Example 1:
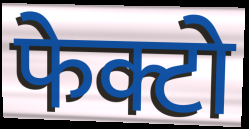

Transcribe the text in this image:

फेक्टो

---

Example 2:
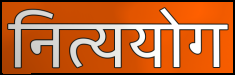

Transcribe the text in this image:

नित्ययोग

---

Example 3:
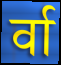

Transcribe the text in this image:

र्वा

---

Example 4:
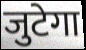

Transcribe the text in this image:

जुटेगा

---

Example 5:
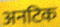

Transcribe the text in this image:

अनटिक